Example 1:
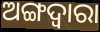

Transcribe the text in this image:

ଅଙ୍ଗଦ୍ଵାରା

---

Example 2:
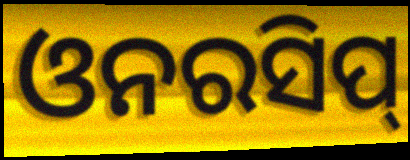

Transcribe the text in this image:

ଓନରସିପ୍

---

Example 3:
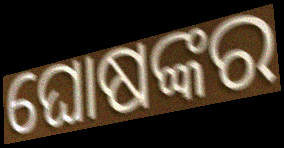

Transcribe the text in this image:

ଘୋଷଙ୍କର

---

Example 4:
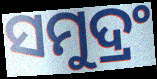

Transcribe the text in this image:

ସମୁଦ୍ରଂ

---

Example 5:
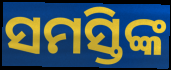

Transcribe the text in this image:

ସମସ୍ତିଙ୍କ